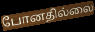
போனதில்லை